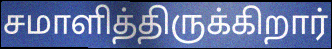
சமாளித்திருக்கிறார்